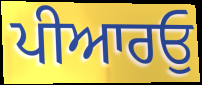
ਪੀਆਰਓੁ